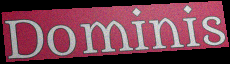
Dominis